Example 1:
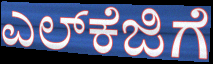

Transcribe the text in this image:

ಎಲ್‌ಕೆಜಿಗೆ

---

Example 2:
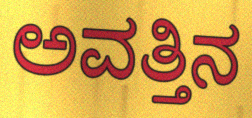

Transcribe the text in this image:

ಅವತ್ತಿನ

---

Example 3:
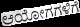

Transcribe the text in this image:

ಆಯೋಗಗಳಿಗೆ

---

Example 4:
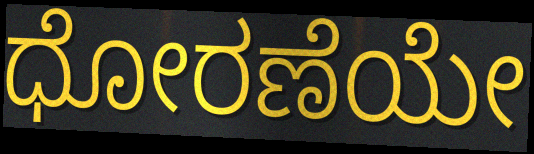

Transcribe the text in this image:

ಧೋರಣೆಯೇ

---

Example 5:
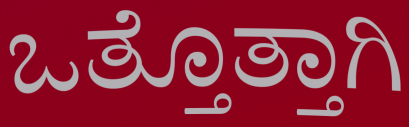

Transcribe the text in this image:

ಒತ್ತೊತ್ತಾಗಿ